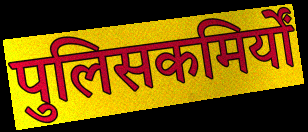
पुलिसकमिर्यों